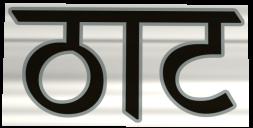
ठाट